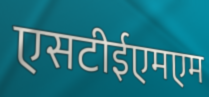
एसटीईएमएम